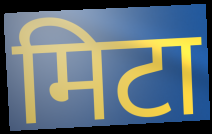
मिटा